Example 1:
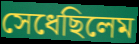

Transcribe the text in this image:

সেধেছিলেম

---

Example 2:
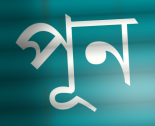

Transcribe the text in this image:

পূন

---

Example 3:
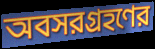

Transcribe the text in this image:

অবসরগ্রহণের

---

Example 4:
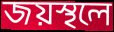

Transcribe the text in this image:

জয়স্থলে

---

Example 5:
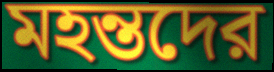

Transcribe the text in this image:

মহন্তদের